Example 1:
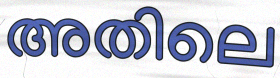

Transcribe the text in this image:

അതിലെ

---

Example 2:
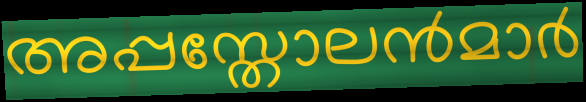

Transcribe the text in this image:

അപ്പസ്തോലൻമാർ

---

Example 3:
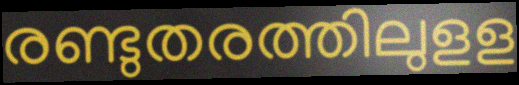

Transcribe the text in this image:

രണ്ടുതരത്തിലുളള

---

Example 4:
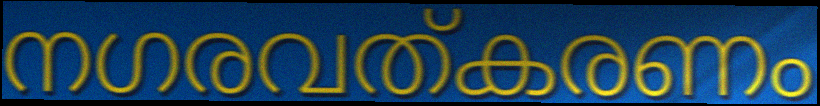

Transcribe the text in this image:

നഗരവത്കരണം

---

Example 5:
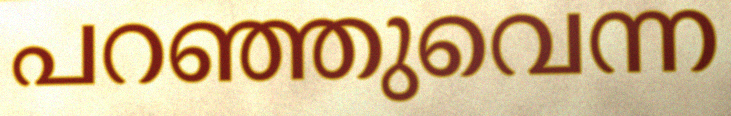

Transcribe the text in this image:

പറഞ്ഞുവെന്ന